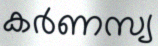
കർണസ്യ